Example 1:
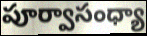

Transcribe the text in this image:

పూర్వాసంధ్యా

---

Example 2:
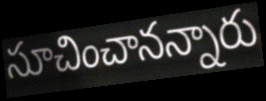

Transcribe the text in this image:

సూచించానన్నారు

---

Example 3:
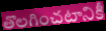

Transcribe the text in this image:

తొలగించటానికీ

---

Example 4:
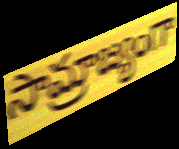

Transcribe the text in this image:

సామ్రాజ్యంగా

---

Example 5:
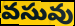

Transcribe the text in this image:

వసువు